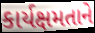
કાર્યક્ષમતાને